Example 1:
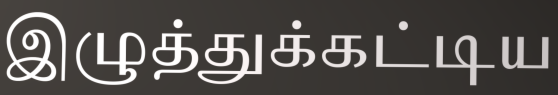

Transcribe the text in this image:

இழுத்துக்கட்டிய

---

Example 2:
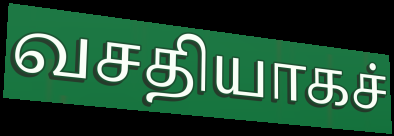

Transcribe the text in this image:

வசதியாகச்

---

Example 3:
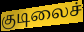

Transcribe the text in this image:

குடிலைச்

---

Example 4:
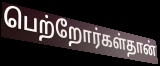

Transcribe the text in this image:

பெற்றோர்கள்தான்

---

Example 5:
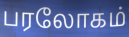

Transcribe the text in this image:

பரலோகம்